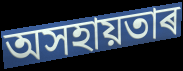
অসহায়তাৰ